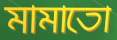
মামাতো